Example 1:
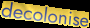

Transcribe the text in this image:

decolonise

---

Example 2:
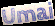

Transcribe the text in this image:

Umai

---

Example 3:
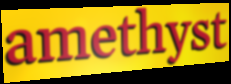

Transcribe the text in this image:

amethyst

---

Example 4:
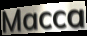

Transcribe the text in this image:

Macca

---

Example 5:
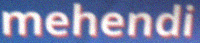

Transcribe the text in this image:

mehendi